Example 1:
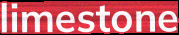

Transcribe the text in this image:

limestone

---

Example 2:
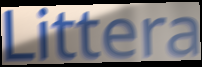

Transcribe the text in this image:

Littera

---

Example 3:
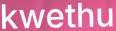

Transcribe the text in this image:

kwethu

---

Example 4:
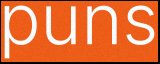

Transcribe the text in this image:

puns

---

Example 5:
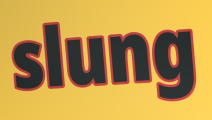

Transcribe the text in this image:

slung